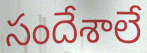
సందేశాలే